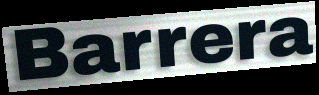
Barrera